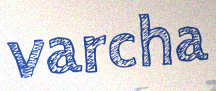
varcha